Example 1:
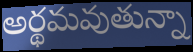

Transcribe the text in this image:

అర్థమవుతున్నా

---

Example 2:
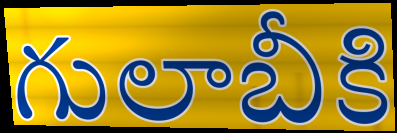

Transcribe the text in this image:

గులాబీకి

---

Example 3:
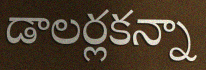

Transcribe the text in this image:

డాలర్లకన్నా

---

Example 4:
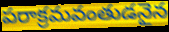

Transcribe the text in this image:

పరాక్రమవంతుడనైన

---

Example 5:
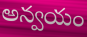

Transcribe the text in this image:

అన్వయం